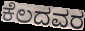
ಕೆಲದವರ